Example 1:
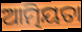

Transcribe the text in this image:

ଆତ୍ମିୟତା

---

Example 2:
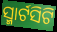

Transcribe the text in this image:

ସ୍ମାର୍ଟସିଟି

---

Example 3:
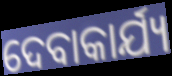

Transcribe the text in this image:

ଦେବାକାର୍ଯ୍ୟ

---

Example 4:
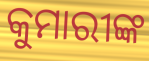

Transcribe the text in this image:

କୁମାରୀଙ୍କ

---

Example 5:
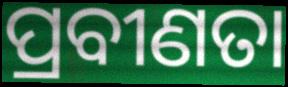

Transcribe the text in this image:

ପ୍ରବୀଣତା